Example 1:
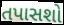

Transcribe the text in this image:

તપાસશો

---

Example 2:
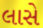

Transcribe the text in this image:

લાસે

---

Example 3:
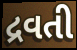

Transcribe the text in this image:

દ્રવતી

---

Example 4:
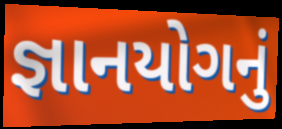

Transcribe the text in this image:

જ્ઞાનયોગનું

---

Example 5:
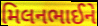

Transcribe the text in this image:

મિલનભાઈને